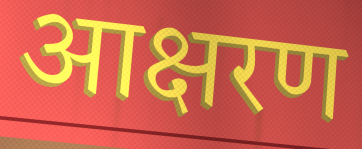
आक्षरण